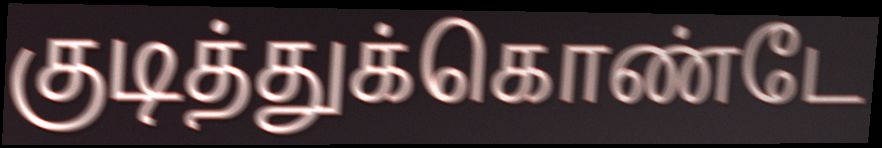
குடித்துக்கொண்டே